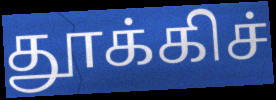
தூக்கிச்